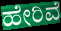
ಹೇರಿವೆ